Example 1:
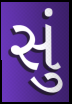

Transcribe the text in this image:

સું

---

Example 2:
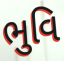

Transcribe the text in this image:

ભુવિ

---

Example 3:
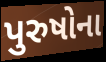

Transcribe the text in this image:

પુરુષોના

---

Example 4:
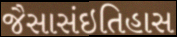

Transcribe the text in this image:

જૈસાસંઇતિહાસ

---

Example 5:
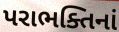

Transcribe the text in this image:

પરાભક્તિનાં